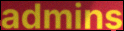
admins